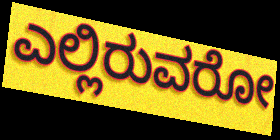
ಎಲ್ಲಿರುವರೋ